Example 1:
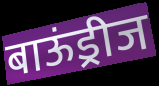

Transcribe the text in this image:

बाऊंड्रीज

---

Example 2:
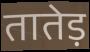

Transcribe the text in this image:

तातेड़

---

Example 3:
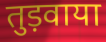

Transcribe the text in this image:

तुड़वाया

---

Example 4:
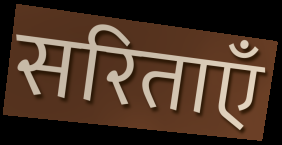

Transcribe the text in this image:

सरिताएँ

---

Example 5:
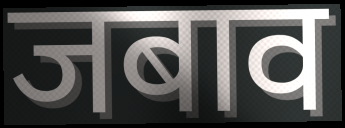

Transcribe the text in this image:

जबाव